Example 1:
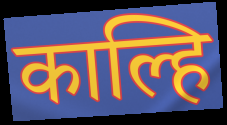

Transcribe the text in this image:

काल्हि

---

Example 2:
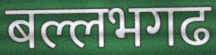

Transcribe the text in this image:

बल्लभगढ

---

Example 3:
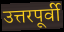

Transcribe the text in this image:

उत्तरपूर्वी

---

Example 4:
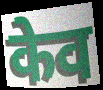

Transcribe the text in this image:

केव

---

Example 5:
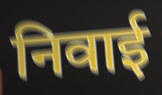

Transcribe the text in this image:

निवाई